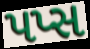
પપ્સ